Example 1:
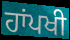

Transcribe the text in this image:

ਹਾਂਪਖੀ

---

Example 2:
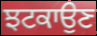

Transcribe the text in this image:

ਝਟਕਾਉਣ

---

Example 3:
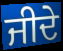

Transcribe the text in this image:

ਜੀਦੇ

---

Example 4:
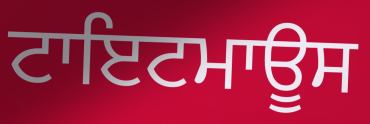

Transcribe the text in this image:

ਟਾਇਟਮਾਊਸ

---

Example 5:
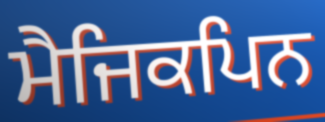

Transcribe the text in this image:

ਮੈਜਿਕਪਿਨ